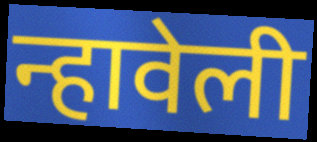
न्हावेली